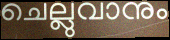
ചെല്ലുവാനും